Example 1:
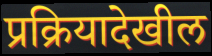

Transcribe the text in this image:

प्रक्रियादेखील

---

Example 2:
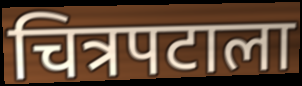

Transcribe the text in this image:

चित्रपटाला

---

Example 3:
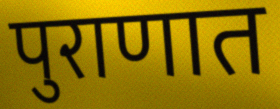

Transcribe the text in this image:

पुराणात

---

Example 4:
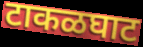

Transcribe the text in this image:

टाकळघाट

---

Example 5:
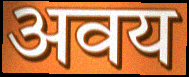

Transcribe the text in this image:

अवय